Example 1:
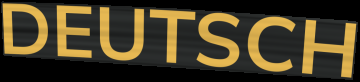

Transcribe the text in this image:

DEUTSCH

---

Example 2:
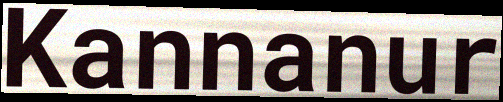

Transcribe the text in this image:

Kannanur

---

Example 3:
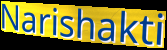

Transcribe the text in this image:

Narishakti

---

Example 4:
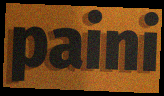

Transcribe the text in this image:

paini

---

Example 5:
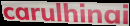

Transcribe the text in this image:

carulhinai